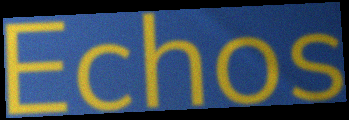
Echos